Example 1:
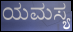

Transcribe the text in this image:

ಯಮಸ್ಯ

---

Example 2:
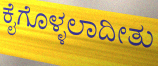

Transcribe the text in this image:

ಕೈಗೊಳ್ಳಲಾದೀತು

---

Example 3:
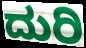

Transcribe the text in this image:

ದುರಿ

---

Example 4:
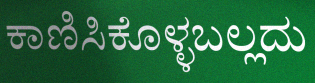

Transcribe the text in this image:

ಕಾಣಿಸಿಕೊಳ್ಳಬಲ್ಲದು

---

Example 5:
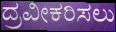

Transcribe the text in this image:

ದ್ರವೀಕರಿಸಲು